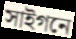
সাইগনে